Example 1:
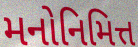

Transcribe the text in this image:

મનોનિમિત્ત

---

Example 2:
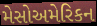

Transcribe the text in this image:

મેસોઅમેરિકન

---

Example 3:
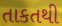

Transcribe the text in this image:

તાકતથી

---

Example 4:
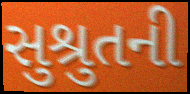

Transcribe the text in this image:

સુશ્રુતની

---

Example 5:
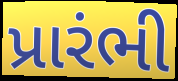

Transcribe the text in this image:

પ્રારંભી